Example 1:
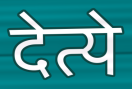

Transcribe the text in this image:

देत्ये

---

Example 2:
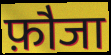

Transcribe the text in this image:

फ़ौजा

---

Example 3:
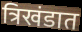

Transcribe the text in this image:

त्रिखंडात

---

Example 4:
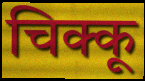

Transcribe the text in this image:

चिक्कू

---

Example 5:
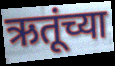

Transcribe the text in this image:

ऋतूंच्या